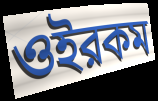
ওইরকম